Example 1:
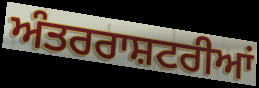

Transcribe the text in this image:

ਅੰਤਰਰਾਸ਼ਟਰੀਆਂ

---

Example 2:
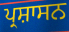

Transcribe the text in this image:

ਪ੍ਰਸ਼ਾਸਨ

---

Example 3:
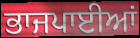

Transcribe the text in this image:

ਭਾਜਪਾਈਆਂ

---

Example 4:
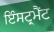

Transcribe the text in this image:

ਇੰਸਟ੍ਰਮੈਂਟ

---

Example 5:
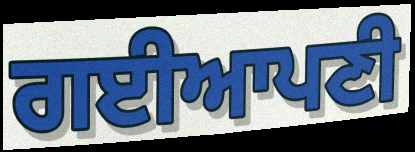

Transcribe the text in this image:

ਗਈਆਪਣੀ